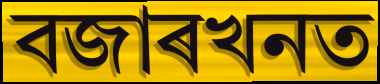
বজাৰখনত